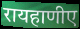
रायहाणीए